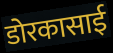
डोरकासाई